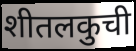
शीतलकुची